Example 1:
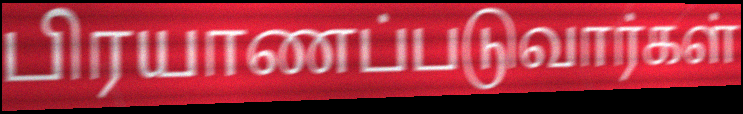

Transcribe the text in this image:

பிரயாணப்படுவார்கள்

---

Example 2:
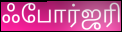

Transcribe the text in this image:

ஃபோர்ஜரி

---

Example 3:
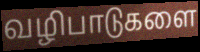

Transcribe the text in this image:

வழிபாடுகளை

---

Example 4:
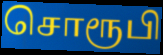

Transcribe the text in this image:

சொரூபி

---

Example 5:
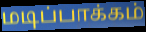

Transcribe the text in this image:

மடிப்பாக்கம்